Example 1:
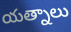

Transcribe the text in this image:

యత్నాలు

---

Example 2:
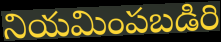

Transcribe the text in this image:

నియమింపబడిరి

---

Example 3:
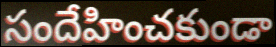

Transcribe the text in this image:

సందేహించకుండా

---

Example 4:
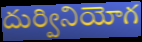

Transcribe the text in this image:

దుర్వినియోగ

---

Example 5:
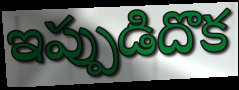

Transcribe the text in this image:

ఇప్పుడిదొక